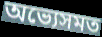
অভ্যেসমত